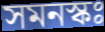
সমনস্কঃ